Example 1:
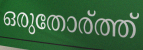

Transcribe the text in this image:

ഒരുതോര്ത്ത്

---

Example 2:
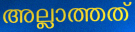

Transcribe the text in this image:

അല്ലാത്തത്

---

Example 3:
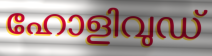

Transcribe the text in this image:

ഹോളിവുഡ്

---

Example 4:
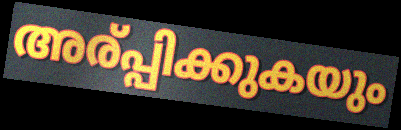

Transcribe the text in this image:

അര്പ്പിക്കുകയും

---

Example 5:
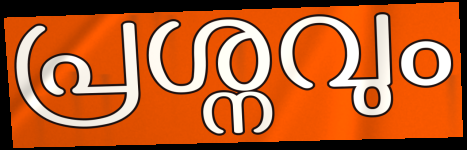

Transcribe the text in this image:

പ്രശ്നവും